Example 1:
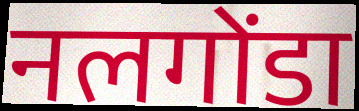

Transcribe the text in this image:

नलगोंडा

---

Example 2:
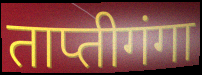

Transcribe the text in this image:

ताप्तीगंगा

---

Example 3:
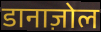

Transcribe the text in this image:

डानाज़ोल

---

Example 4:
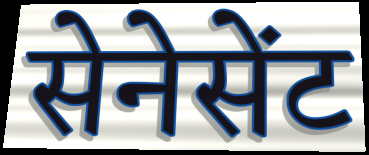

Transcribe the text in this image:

सेनेसेंट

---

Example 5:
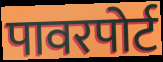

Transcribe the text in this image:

पावरपोर्ट